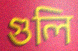
গুলি